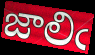
జాలిఁ